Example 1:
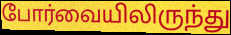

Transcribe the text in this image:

போர்வையிலிருந்து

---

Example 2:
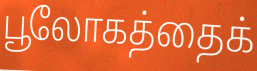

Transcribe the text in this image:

பூலோகத்தைக்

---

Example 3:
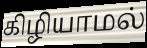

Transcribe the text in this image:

கிழியாமல்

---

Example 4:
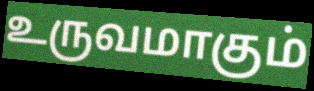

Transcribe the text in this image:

உருவமாகும்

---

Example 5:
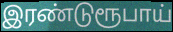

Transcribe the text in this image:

இரண்டுரூபாய்